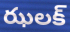
ఝలక్